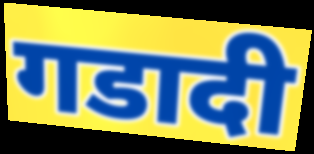
गडादी